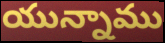
యున్నాము